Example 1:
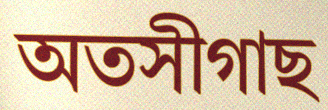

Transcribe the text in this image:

অতসীগাছ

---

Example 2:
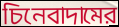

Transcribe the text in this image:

চিনেবাদামের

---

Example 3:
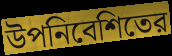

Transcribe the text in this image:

উপনিবেশিতের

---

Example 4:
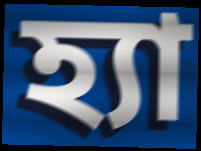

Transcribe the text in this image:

হ্যা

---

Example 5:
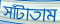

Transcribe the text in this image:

সাঁটাতাম